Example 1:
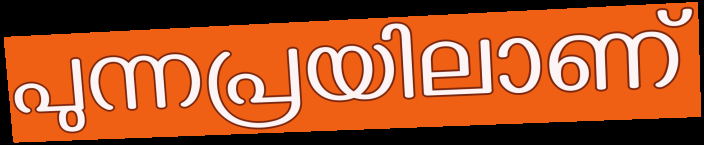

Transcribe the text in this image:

പുന്നപ്രയിലാണ്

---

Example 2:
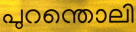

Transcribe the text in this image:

പുറന്തൊലി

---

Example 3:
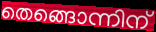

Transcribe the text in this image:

തെങ്ങൊന്നിന്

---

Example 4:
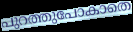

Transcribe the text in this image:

പുറത്തുപോകാതെ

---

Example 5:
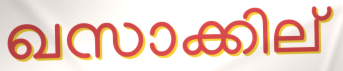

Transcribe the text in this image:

ഖസാക്കില്